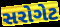
સરોગેટ